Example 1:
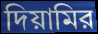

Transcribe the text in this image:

দিয়ামির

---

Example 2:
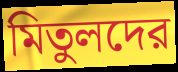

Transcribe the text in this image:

মিতুলদের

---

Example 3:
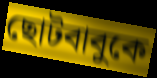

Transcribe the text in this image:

ছোটবাবুকে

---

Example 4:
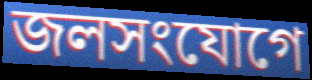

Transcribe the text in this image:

জলসংযোগে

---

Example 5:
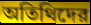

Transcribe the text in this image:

অতিথিদের